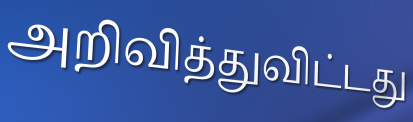
அறிவித்துவிட்டது